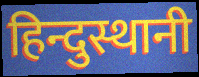
हिन्दुस्थानी